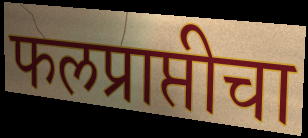
फलप्राप्तीचा